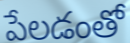
పేలడంతో